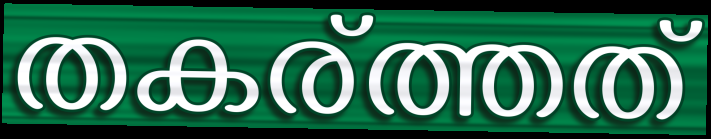
തകര്ത്തത്